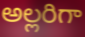
అల్లరిగా